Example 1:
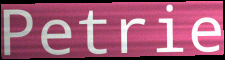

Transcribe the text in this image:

Petrie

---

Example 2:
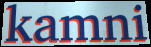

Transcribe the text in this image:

kamni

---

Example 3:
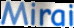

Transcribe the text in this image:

Mirai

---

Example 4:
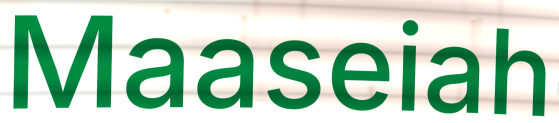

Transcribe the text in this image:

Maaseiah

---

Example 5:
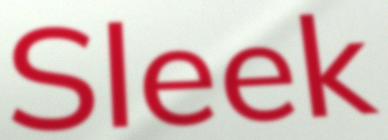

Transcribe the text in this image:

Sleek